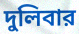
দুলিবার